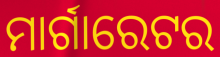
ମାର୍ଗାରେଟର